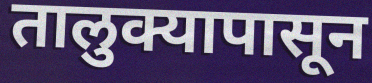
तालुक्यापासून